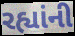
રહ્યાંની